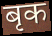
बृक